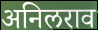
अनिलराव